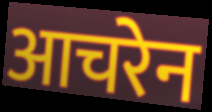
आचरेन